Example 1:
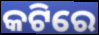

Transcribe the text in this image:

କଟିରେ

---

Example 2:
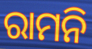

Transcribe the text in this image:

ରାମନି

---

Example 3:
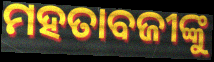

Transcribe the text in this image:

ମହତାବଜୀଙ୍କୁ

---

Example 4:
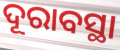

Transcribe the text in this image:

ଦୂରାବସ୍ଥା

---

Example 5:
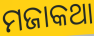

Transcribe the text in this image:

ମଜାକଥା